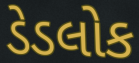
ડેડલોક